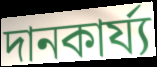
দানকার্য্য